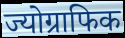
ज्योग्राफिक